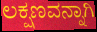
ಲಕ್ಷಣವನ್ನಾಗಿ